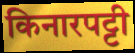
किनारपट्टी